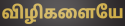
விழிகளையே